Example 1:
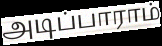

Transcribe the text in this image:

அடிப்பாராம்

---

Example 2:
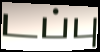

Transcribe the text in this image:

டப்பு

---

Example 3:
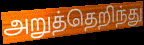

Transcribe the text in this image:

அறுத்தெறிந்து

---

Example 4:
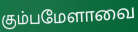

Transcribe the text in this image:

கும்பமேளாவை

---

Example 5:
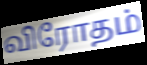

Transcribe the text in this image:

விரோதம்